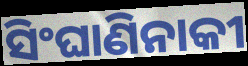
ସିଂଘାଣିନାକୀ